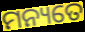
ମନ୍ୟତେ